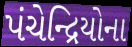
પંચેન્દ્રિયોના